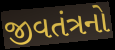
જીવતંત્રનો